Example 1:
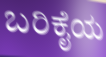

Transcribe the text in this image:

ಬರಿಕೈಯ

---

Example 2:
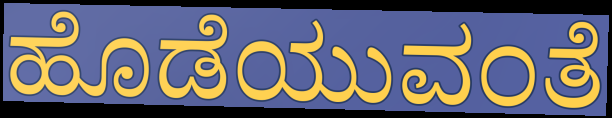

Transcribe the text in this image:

ಹೊಡೆಯುವಂತೆ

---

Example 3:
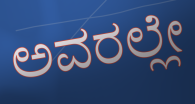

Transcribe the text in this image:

ಅವರಲ್ಲೇ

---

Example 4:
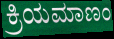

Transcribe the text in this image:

ಕ್ರಿಯಮಾಣಂ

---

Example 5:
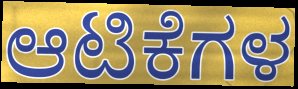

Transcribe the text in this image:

ಆಟಿಕೆಗಳ